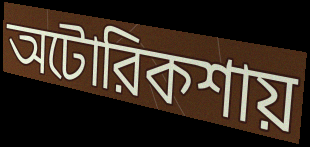
অটোরিকশায়